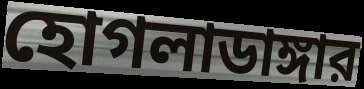
হোগলাডাঙ্গার